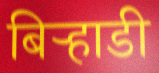
बिर्‍हाडी